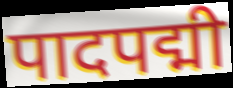
पादपद्मी